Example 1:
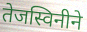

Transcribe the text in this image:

तेजस्विनीने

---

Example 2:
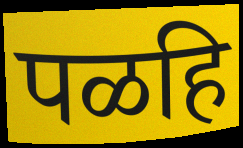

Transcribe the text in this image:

पळहि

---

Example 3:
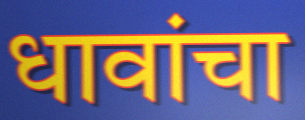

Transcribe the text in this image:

धावांचा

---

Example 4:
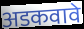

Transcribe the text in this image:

अडकवावे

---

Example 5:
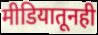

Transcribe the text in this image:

मीडियातूनही